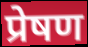
प्रेषण